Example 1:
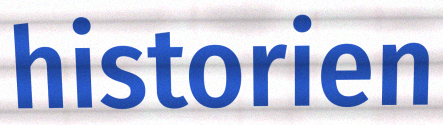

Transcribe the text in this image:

historien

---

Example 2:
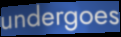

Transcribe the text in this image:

undergoes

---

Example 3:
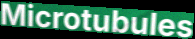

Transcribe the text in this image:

Microtubules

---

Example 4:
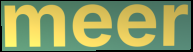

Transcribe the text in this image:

meer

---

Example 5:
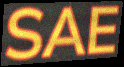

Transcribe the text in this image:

SAE